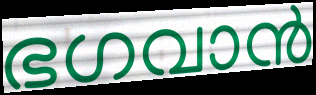
ഭഗവാൻ